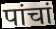
पांचां